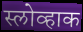
स्लोव्हाक